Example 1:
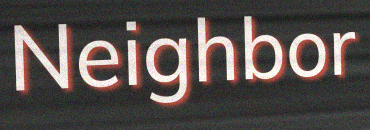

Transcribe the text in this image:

Neighbor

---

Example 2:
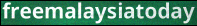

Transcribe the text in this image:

freemalaysiatoday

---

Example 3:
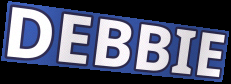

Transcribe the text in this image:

DEBBIE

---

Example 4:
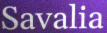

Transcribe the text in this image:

Savalia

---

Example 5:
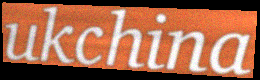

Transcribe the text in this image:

ukchina